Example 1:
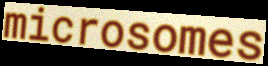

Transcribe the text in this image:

microsomes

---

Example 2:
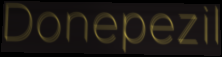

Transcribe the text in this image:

Donepezil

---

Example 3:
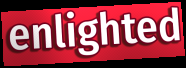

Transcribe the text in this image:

enlighted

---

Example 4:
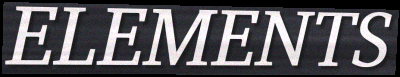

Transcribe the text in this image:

ELEMENTS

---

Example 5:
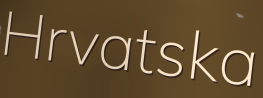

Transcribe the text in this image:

Hrvatska